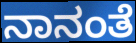
ನಾನಂತೆ